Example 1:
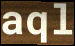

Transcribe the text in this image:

aql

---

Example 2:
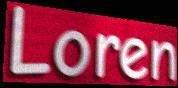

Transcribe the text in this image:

Loren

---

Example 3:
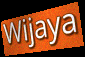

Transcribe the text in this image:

Wijaya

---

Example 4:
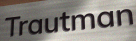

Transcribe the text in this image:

Trautman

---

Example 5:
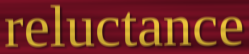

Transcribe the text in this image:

reluctance